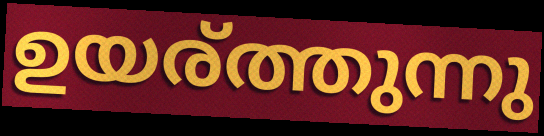
ഉയര്ത്തുന്നു